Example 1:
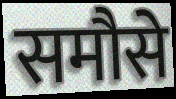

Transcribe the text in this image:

समौसे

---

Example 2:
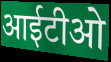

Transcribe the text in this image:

आईटीओ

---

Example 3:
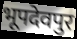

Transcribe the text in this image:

भूपदेवपुर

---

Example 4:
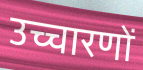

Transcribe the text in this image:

उच्चारणों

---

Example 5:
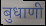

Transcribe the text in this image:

बुधाणी